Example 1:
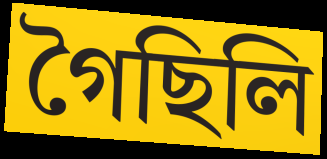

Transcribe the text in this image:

গৈছিলি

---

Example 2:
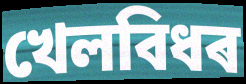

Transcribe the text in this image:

খেলবিধৰ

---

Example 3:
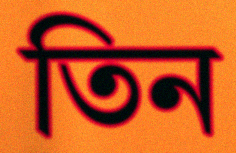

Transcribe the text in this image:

তিন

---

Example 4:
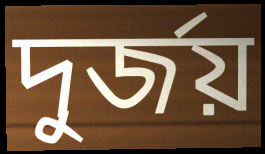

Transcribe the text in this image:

দুৰ্জয়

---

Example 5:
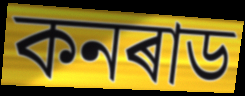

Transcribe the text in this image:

কনৰাড